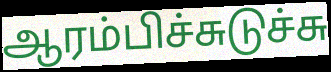
ஆரம்பிச்சுடுச்சு